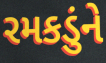
રમકડુંને